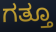
ಗತ್ತೂ